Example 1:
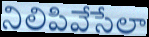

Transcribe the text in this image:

నిలిపివేసేలా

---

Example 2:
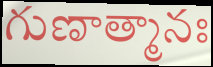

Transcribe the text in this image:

గుణాత్మానః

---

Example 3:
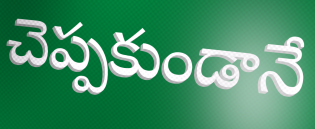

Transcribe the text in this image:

చెప్పకుండానే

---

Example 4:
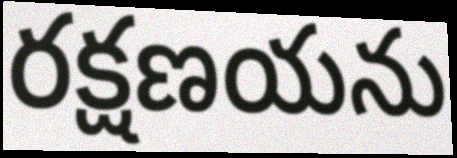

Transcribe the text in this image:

రక్షణయను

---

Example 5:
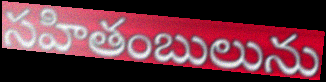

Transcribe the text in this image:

సహితంబులును